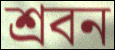
শ্ৰবন